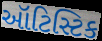
ઑટિસ્ટિક